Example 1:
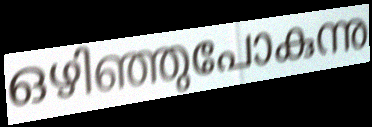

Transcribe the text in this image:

ഒഴിഞ്ഞുപോകുന്നു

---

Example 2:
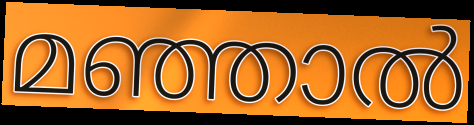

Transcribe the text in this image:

മഞ്ഞാൽ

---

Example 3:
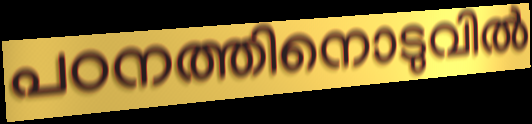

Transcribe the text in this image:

പഠനത്തിനൊടുവിൽ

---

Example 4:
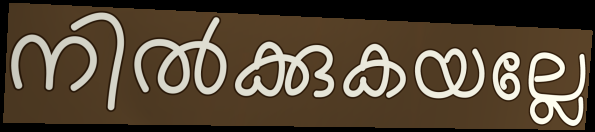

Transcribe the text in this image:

നിൽക്കുകയല്ലേ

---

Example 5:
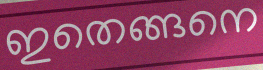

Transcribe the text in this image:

ഇതെങ്ങനെ